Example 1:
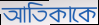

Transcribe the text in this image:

আতিকাকে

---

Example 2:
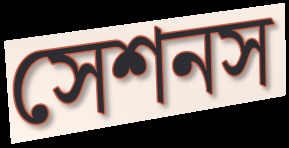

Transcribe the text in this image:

সেশনস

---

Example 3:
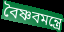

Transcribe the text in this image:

বৈষ্ণবমন্ত্রে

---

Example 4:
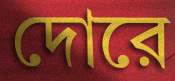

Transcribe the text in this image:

দোরে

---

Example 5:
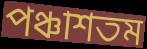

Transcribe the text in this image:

পঞ্চাশতম